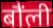
बौंली